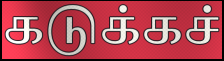
கடுக்கச்